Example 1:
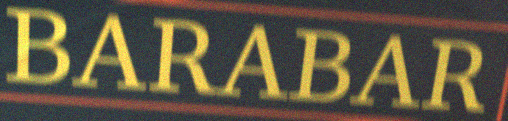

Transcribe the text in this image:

BARABAR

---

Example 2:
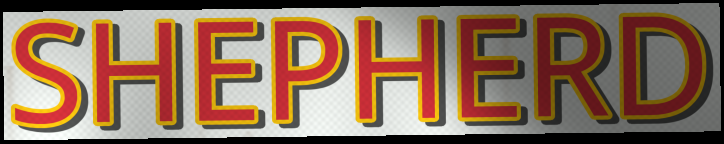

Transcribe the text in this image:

SHEPHERD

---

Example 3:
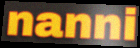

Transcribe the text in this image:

nanni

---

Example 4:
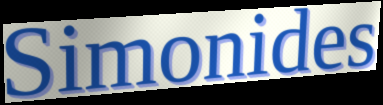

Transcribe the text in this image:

Simonides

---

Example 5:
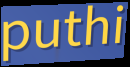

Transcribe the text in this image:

puthi